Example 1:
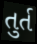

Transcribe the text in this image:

તુર્ત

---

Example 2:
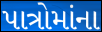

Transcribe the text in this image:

પાત્રોમાંના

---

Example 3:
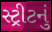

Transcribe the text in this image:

સ્ટ્રીટનું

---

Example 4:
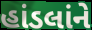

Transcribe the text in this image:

હાંડલાંને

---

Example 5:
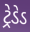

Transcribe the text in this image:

ટ્રેડેડ